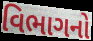
વિભાગનો